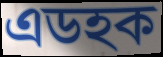
এডহক